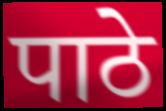
पाठे